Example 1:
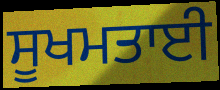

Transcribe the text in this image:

ਸੂਖਮਤਾਈ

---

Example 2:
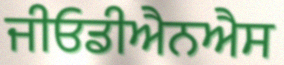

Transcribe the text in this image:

ਜੀਓਡੀਐਨਐਸ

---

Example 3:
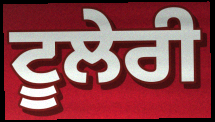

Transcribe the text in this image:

ਟੂਲੇਰੀ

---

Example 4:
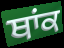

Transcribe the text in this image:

ਥਾਂਕ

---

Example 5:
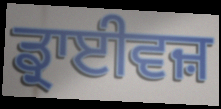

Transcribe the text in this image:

ਡ੍ਰਾਈਵਜ਼